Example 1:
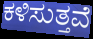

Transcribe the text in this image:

ಕಳಿಸುತ್ತವೆ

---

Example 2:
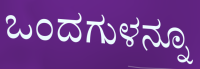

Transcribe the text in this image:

ಒಂದಗುಳನ್ನೂ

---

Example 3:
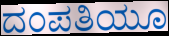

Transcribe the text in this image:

ದಂಪತಿಯೂ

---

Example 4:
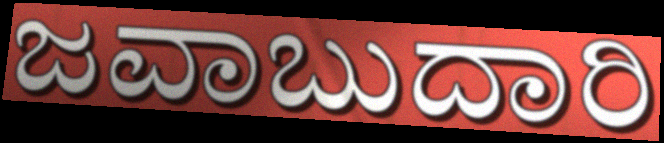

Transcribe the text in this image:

ಜವಾಬುದಾರಿ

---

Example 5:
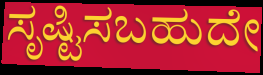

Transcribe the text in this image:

ಸೃಷ್ಟಿಸಬಹುದೇ